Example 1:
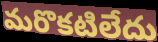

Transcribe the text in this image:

మరొకటిలేదు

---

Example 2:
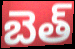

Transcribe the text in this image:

బెత్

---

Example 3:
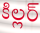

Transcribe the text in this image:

కిల్లర్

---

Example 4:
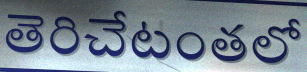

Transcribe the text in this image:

తెరిచేటంతలో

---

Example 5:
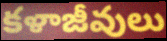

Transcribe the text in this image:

కళాజీవులు